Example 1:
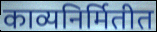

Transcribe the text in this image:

काव्यनिर्मितीत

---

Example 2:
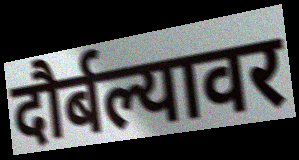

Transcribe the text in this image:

दौर्बल्यावर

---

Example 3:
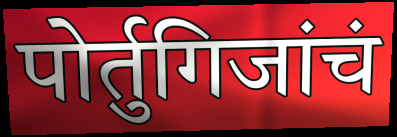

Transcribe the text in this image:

पोर्तुगिजांचं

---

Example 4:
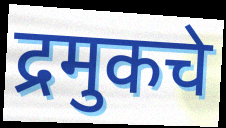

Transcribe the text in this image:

द्रमुकचे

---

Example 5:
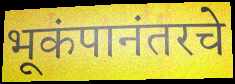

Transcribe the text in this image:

भूकंपानंतरचे